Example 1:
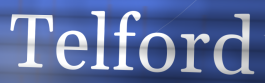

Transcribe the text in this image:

Telford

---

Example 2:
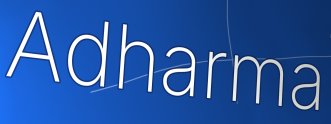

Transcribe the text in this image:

Adharma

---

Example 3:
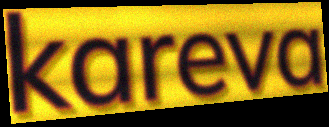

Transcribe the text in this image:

kareva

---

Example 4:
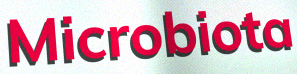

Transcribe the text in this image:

Microbiota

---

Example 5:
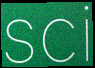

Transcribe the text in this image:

sci